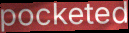
pocketed